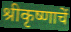
श्रीकृष्णाचें